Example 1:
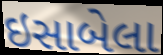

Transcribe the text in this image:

ઇસાબેલા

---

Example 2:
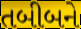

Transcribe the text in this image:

તબીબને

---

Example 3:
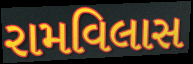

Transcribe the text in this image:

રામવિલાસ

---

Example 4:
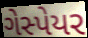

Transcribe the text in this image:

ગેસ્પેયર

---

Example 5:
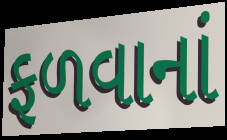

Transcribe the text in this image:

ફળવાનાં